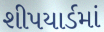
શીપયાર્ડમાં